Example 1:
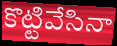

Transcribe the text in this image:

కొట్టివేసినా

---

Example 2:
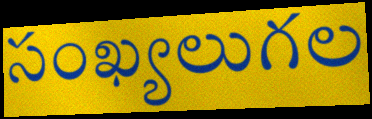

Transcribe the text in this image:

సంఖ్యలుగల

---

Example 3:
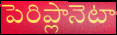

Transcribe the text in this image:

పెరిప్లానెటా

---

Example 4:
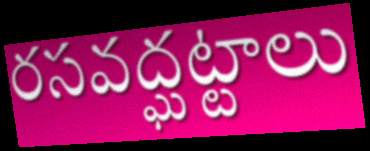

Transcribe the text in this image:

రసవద్ఘట్టాలు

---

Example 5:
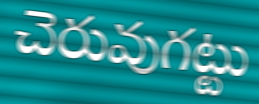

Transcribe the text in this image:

చెరువుగట్టు